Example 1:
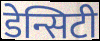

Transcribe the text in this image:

डेन्सिटी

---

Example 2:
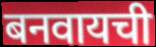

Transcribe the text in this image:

बनवायची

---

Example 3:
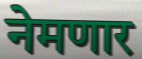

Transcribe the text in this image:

नेमणार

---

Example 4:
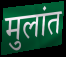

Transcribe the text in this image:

मुलांत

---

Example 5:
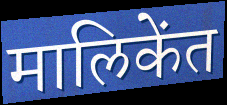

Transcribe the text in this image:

मालिकेंत